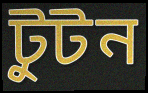
টুটন